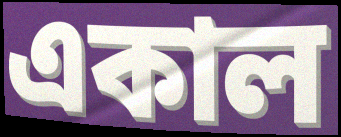
একাল